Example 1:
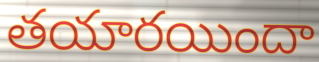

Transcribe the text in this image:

తయారయిందా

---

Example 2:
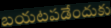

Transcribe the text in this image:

బయటపడేందుకు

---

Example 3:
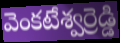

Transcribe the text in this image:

వెంకటేశ్వర్రెడ్డి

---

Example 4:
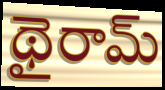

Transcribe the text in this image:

థైరామ్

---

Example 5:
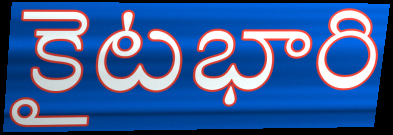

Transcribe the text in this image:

కైటభారి